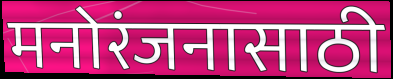
मनोरंजनासाठी